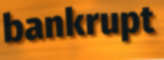
bankrupt